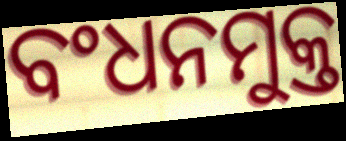
ବଂଧନମୁକ୍ତ